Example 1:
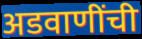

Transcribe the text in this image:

अडवाणींची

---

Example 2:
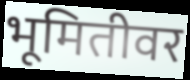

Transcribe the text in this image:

भूमितीवर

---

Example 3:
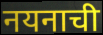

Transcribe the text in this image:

नयनाची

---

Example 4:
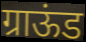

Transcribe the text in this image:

ग्राऊंड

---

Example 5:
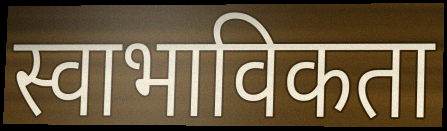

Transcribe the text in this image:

स्वाभाविकता